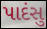
પાદંસુ